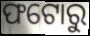
ଫଟୋରୁ